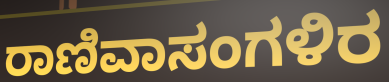
ರಾಣಿವಾಸಂಗಳಿರ